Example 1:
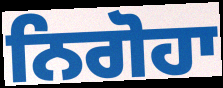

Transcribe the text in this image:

ਨਿਗੋਹਾ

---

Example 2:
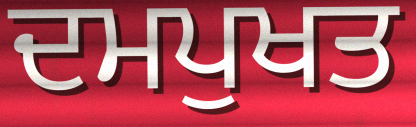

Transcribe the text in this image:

ਦਮਪੁਖਤ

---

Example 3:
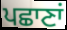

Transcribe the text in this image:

ਪਛਾਣਾਂ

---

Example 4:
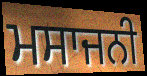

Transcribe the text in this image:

ਮਸਾਜਨੀ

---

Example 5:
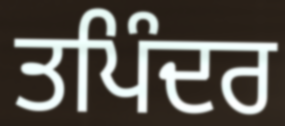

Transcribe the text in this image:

ਤਪਿੰਦਰ